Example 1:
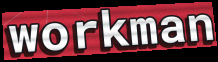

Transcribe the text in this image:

workman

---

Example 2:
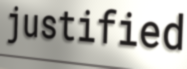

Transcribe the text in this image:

justified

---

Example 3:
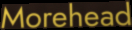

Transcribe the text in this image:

Morehead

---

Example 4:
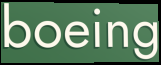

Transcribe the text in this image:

boeing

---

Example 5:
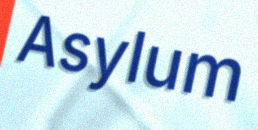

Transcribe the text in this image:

Asylum